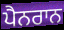
ਪੈਨਰਾਨ